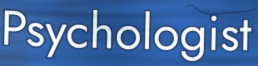
Psychologist